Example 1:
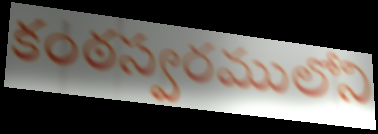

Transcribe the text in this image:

కంఠస్వరములోని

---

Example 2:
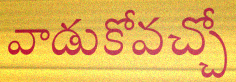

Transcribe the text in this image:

వాడుకోవచ్చో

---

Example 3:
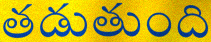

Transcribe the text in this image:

తడుతుంది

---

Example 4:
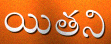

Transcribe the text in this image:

యితని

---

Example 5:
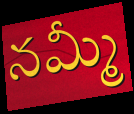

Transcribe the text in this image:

నమ్మీ